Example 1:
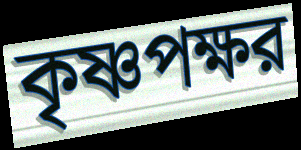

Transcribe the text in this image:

কৃষ্ণপক্ষর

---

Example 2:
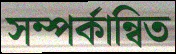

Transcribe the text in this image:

সম্পর্কান্বিত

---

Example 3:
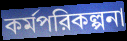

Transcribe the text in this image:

কর্মপরিকল্পনা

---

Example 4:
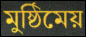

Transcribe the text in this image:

মুষ্ঠিমেয়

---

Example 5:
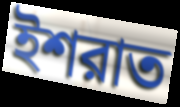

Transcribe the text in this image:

ইশরাত